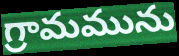
గ్రామమును